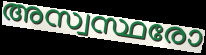
അസ്വസ്ഥരോ